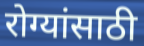
रोग्यांसाठी